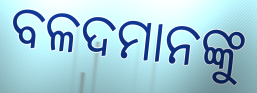
ବଳଦମାନଙ୍କୁ